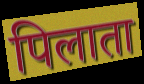
पिलाता